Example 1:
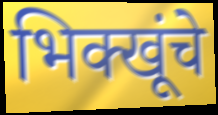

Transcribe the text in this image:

भिक्खूंचे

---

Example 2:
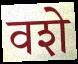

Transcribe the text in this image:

वशे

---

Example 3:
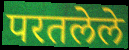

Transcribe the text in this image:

परतलेले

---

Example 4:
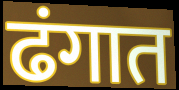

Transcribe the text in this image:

ढंगात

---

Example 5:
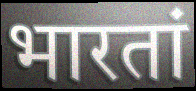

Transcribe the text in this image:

भारतां